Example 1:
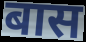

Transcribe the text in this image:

बास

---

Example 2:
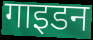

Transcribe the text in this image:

गाइडन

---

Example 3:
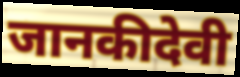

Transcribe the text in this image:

जानकीदेवी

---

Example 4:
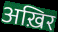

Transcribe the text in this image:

अख़िर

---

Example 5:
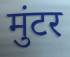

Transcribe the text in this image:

मुंटर